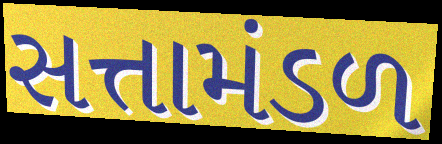
સત્તામંડળ